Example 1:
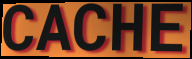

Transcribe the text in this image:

CACHE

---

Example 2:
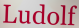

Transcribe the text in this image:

Ludolf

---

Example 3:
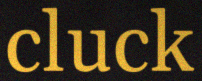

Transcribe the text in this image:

cluck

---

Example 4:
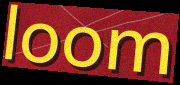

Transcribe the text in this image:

loom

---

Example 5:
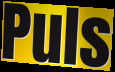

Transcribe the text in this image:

Puls